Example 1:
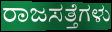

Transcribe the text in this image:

ರಾಜಸತ್ತೆಗಳು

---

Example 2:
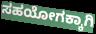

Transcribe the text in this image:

ಸಹಯೋಗಕ್ಕಾಗಿ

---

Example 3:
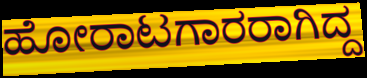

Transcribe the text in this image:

ಹೋರಾಟಗಾರರಾಗಿದ್ದ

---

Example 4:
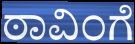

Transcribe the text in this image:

ಠಾವಿಂಗೆ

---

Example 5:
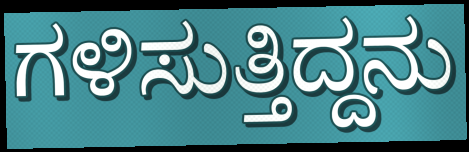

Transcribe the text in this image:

ಗಳಿಸುತ್ತಿದ್ದನು